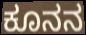
ಕೂನನ